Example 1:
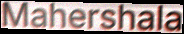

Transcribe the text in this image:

Mahershala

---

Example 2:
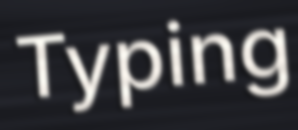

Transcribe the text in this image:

Typing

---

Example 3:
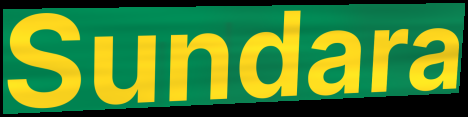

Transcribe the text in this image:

Sundara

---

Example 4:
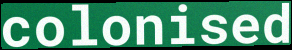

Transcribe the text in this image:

colonised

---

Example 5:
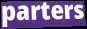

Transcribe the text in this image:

parters